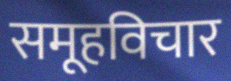
समूहविचार